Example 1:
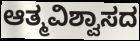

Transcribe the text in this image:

ಆತ್ಮವಿಶ್ವಾಸದ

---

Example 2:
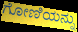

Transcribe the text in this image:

ಗೋಣಿಯನ್ನು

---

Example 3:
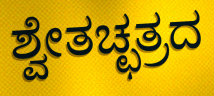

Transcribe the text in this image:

ಶ್ವೇತಚ್ಛತ್ರದ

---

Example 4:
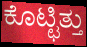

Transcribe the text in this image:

ಕೊಟ್ಟಿತ್ತು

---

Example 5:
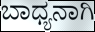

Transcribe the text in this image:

ಬಾಧ್ಯನಾಗಿ